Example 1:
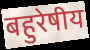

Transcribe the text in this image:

बहुरेषीय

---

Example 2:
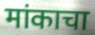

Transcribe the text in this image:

मांकाचा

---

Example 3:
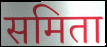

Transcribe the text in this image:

समिता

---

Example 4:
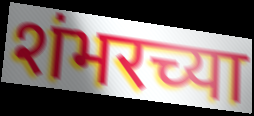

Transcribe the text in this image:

शंभरच्या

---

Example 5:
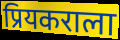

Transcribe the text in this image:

प्रियकराला